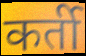
कर्ती